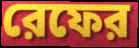
রেফের